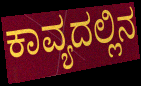
ಕಾವ್ಯದಲ್ಲಿನ